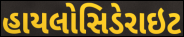
હાયલોસિડેરાઇટ